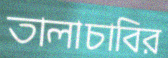
তালাচাবির